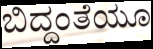
ಬಿದ್ದಂತೆಯೂ